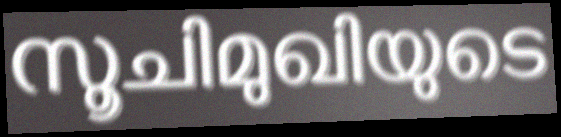
സൂചിമുഖിയുടെ